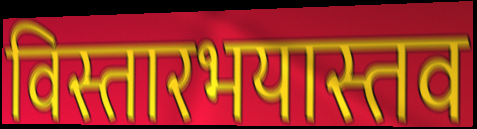
विस्तारभयास्तव